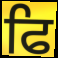
ਫਿ